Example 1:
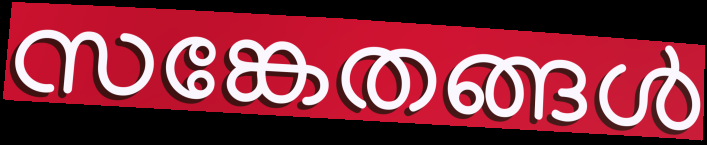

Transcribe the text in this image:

സങ്കേതങ്ങൾ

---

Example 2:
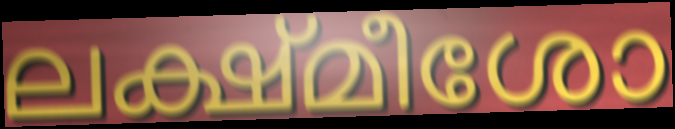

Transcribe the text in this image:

ലക്ഷ്മീശോ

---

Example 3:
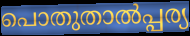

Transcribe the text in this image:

പൊതുതാൽപ്പര്യ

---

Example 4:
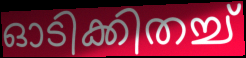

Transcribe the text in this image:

ഓടിക്കിതച്ച്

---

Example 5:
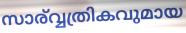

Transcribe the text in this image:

സാര്വ്വത്രികവുമായ